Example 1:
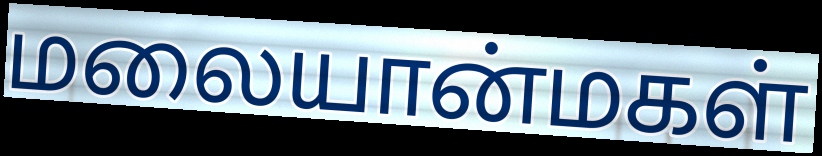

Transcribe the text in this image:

மலையான்மகள்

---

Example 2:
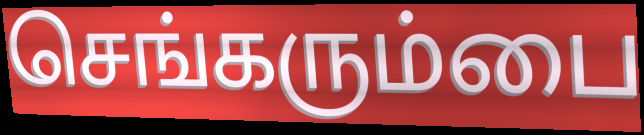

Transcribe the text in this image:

செங்கரும்பை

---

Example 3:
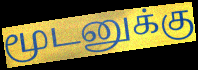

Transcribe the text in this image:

மூடனுக்கு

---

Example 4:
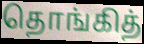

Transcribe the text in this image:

தொங்கித்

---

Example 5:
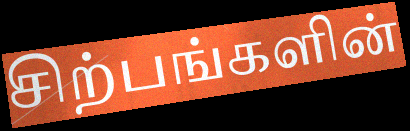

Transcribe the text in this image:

சிற்பங்களின்